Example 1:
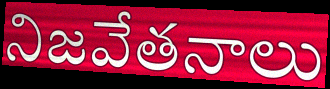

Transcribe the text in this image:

నిజవేతనాలు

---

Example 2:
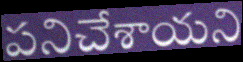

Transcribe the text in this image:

పనిచేశాయని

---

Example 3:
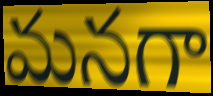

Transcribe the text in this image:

మనగా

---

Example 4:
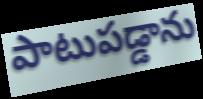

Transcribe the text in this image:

పాటుపడ్డాను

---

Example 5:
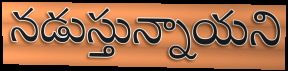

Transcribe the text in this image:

నడుస్తున్నాయని